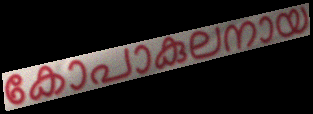
കോപാകുലനായ